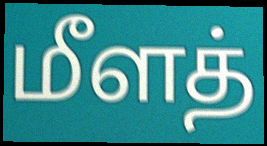
மீளத்